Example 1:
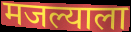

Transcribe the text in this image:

मजल्याला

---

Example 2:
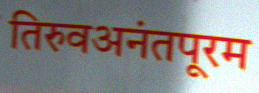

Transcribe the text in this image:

तिरुवअनंतपूरम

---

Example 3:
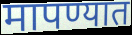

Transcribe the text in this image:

मापण्यात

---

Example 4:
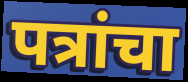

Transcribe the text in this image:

पत्रांचा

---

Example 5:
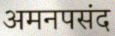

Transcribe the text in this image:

अमनपसंद